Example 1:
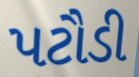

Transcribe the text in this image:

પટૌડી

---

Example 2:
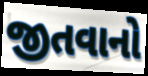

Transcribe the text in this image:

જીતવાનો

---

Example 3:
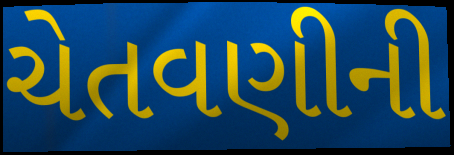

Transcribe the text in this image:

ચેતવણીની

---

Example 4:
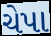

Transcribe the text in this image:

ચેપા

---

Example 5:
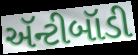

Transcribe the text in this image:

ઍન્ટીબૉડી